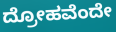
ದ್ರೋಹವೆಂದೇ